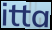
itta